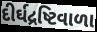
દીર્ઘદ્રષ્ટિવાળા